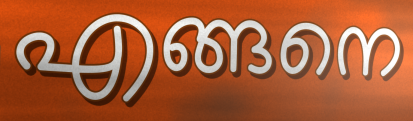
എങ്ങനെ